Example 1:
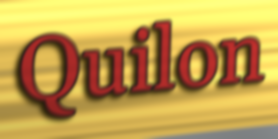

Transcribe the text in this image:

Quilon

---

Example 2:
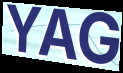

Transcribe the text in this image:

YAG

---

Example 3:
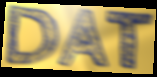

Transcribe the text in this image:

DAT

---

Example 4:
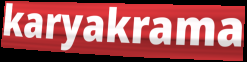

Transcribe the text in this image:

karyakrama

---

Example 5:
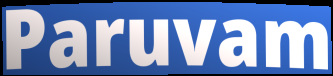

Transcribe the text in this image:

Paruvam